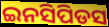
ଇନସିପିଡସ